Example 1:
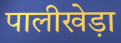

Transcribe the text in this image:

पालीखेड़ा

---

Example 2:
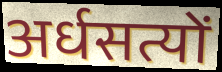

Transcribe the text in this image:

अर्धसत्यों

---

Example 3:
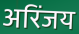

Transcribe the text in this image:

अरिंजय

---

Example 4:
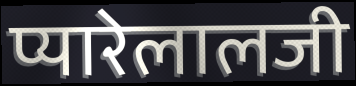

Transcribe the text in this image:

प्यारेलालजी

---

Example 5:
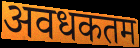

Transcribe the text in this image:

अवधकतम